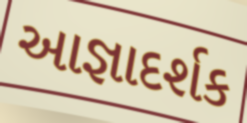
આજ્ઞાદર્શક